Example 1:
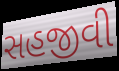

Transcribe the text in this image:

સહજીવી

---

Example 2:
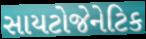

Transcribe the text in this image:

સાયટોજેનેટિક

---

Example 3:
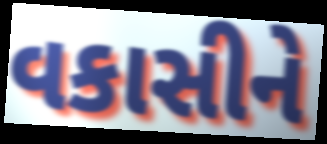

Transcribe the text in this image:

વકાસીને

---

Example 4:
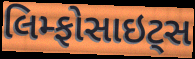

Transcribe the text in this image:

લિમ્ફોસાઇટ્સ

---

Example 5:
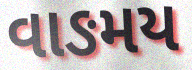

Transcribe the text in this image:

વાઙમય